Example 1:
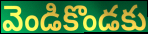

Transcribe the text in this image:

వెండికొండకు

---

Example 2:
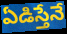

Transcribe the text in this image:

ఏడిస్తేనే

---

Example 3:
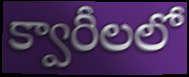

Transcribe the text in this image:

క్వారీలలో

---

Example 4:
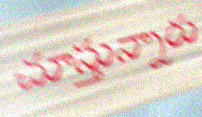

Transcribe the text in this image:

చూస్తున్నారు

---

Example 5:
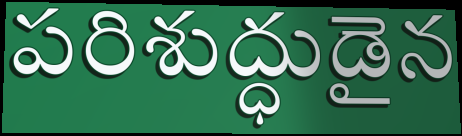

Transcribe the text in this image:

పరిశుద్ధుడైన